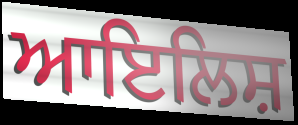
ਆਇਲਿਸ਼